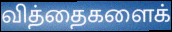
வித்தைகளைக்